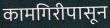
कामगिरीपासून